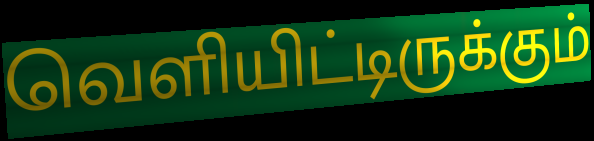
வெளியிட்டிருக்கும்